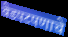
वेडपटपणाचे